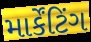
માર્કેંટિંગ